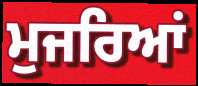
ਮੁਜਰਿਆਂ